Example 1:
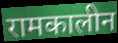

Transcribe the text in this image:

रामकालीन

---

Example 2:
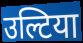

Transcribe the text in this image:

उल्टिया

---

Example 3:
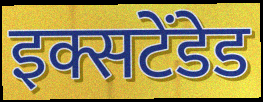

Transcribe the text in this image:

इक्सटेंडेड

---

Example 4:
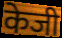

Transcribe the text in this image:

केजी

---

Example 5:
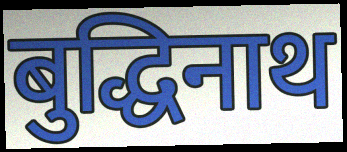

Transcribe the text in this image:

बुद्धिनाथ